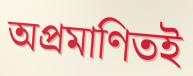
অপ্রমাণিতই